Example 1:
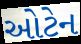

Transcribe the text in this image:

ઓટેન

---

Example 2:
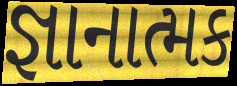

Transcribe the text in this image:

જ્ઞાનાત્મક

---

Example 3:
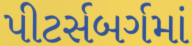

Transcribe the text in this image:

પીટર્સબર્ગમાં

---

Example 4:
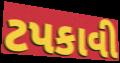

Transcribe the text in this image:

ટપકાવી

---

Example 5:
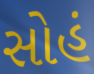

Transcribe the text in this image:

સોહં